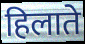
हिलाते